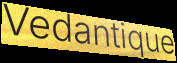
Vedantique